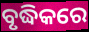
ବୃଦ୍ଧିକରେ